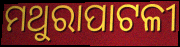
ମଥୁରାପାଟଳୀ